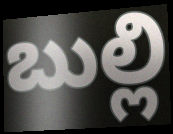
బుల్లి